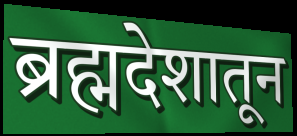
ब्रह्मदेशातून